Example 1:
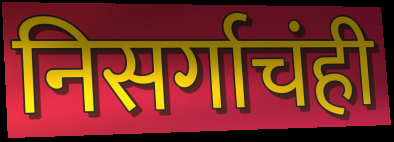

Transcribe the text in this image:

निसर्गाचंही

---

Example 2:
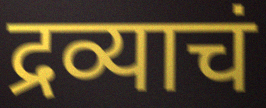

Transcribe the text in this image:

द्रव्याचं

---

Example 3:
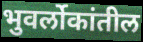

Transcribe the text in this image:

भुवर्लोकांतील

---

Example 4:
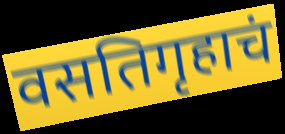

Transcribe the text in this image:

वसतिगृहाचं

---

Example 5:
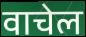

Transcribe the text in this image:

वाचेल